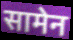
सामेन